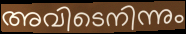
അവിടെനിന്നും